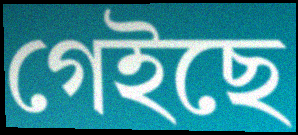
গেইছে